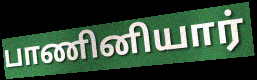
பாணினியார்